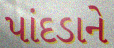
પાંદડાને